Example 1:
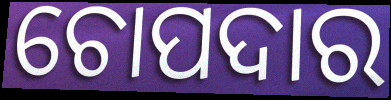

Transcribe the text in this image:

ଚୋପଦାର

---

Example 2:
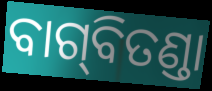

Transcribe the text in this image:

ବାଗ୍‌ବିତଣ୍ଡା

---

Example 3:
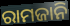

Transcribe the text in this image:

ରାମଜାନି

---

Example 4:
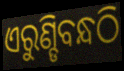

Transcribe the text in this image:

ଏରୁଣ୍ଡିବନ୍ଧଠି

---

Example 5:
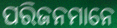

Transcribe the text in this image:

ପରିଜନମାନେ